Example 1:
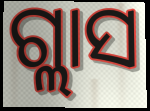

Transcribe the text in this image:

ଗ୍ଲାସ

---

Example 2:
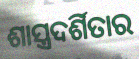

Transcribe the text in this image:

ଶାସ୍ତ୍ରଦର୍ଶିତାର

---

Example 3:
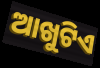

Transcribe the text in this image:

ଆଖୁଟିଏ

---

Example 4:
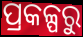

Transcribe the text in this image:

ପ୍ରକଳ୍ପରୁ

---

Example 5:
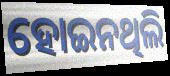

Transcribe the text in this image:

ହୋଇନଥିଲି